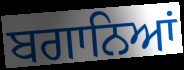
ਬਗਾਨਿਆਂ